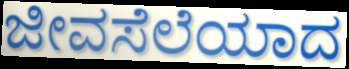
ಜೀವಸೆಲೆಯಾದ